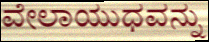
ವೇಲಾಯುಧವನ್ನು